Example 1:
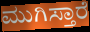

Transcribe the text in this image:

ಮುಗಿಸ್ತಾರೆ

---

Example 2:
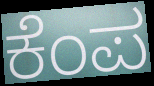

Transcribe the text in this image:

ಕೆಂಪ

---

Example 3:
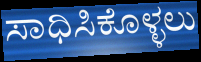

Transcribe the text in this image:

ಸಾಧಿಸಿಕೊಳ್ಳಲು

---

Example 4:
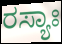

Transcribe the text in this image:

ರಸ್ಯಾಃ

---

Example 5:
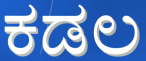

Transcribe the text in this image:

ಕಡಲ